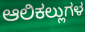
ಆಲಿಕಲ್ಲುಗಳ